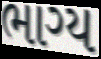
ભાગ્ય